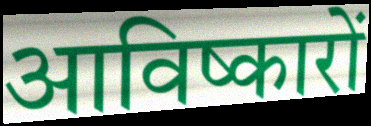
आविष्कारों